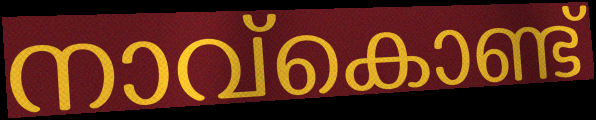
നാവ്കൊണ്ട്